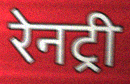
रेनट्री